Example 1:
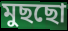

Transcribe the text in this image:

মুছছো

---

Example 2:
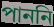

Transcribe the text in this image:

পাননি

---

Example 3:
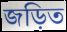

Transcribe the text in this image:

জড়িত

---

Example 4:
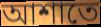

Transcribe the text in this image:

আশাতে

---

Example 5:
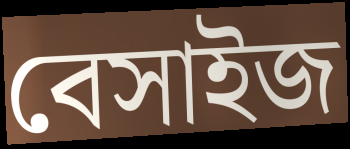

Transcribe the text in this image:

বেসাইজ